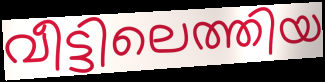
വീട്ടിലെത്തിയ